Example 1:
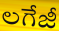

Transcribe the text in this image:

లగేజీ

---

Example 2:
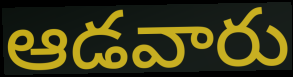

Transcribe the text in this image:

ఆడవారు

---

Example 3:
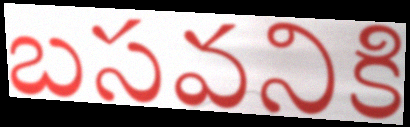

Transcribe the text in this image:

బసవనికి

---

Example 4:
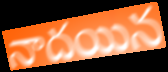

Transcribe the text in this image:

నాదయిన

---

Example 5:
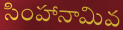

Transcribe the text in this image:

సింహానామివ